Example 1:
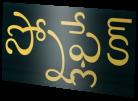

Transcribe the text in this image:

స్నోఫ్లేక్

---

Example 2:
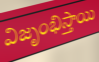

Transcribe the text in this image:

విజృంభిస్తాయి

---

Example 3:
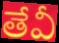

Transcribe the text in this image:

తేవీ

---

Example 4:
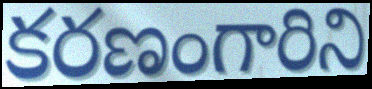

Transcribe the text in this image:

కరణంగారిని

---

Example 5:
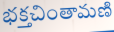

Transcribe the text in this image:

భక్తచింతామణి